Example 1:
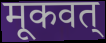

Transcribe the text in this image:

मूकवत्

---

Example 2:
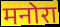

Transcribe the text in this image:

मनोरा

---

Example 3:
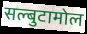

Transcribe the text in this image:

सल्बुटामोल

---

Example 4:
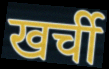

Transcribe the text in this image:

खर्ची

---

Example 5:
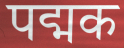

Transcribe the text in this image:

पद्मक